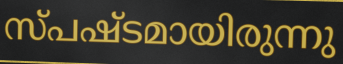
സ്പഷ്ടമായിരുന്നു